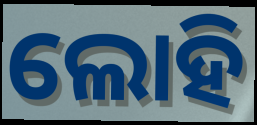
ଲୋହି